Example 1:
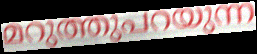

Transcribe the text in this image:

മറുത്തുപറയുന്ന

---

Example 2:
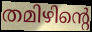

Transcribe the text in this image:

തമിഴിന്റെ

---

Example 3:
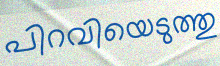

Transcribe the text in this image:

പിറവിയെടുത്തു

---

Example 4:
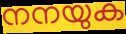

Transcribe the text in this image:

നനയുക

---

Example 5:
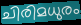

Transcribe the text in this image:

ചിരിമധുരം